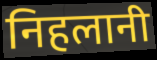
निहलानी